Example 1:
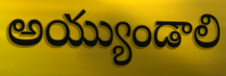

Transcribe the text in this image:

అయ్యుండాలి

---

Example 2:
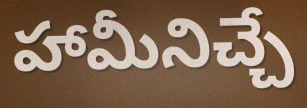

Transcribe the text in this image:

హామీనిచ్చే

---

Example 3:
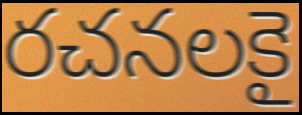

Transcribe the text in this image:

రచనలకై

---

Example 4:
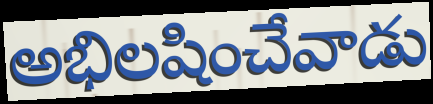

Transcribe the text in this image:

అభిలషించేవాడు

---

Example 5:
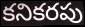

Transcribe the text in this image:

కనికరపు